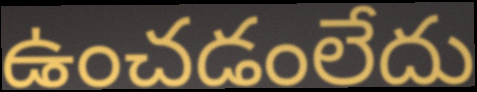
ఉంచడంలేదు